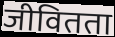
जीवितता